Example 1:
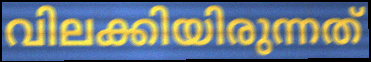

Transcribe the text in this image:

വിലക്കിയിരുന്നത്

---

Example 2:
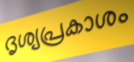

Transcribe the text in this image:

ദൃശ്യപ്രകാശം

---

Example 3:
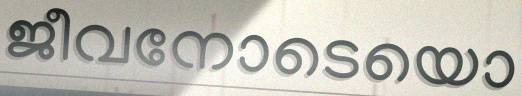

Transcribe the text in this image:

ജീവനോടെയൊ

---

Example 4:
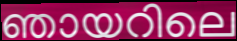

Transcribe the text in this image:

ഞായറിലെ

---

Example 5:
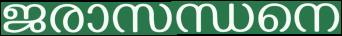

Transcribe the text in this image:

ജരാസന്ധനെ